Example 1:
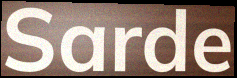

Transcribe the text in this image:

Sarde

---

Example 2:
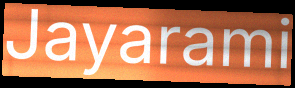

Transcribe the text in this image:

Jayarami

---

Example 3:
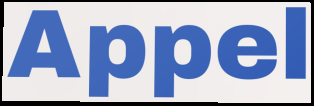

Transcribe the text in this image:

Appel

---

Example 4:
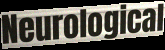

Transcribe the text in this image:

Neurological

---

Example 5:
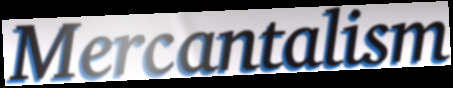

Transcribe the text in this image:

Mercantalism